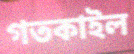
গতকাইল